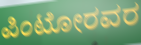
ಪಿಂಟೋರವರ